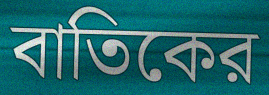
বাতিকের